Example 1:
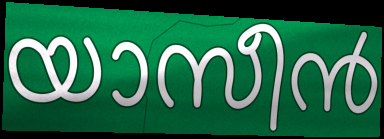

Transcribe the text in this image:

യാസീൻ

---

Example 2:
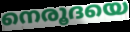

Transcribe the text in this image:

നെരൂദയെ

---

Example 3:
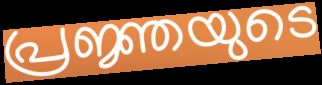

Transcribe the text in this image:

പ്രജ്ഞയുടെ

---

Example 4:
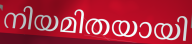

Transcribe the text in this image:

നിയമിതയായി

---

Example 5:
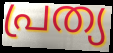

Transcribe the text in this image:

പ്രത്യ